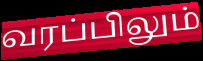
வரப்பிலும்